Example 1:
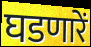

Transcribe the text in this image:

घडणारें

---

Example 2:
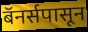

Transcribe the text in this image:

बॅनर्सपासून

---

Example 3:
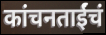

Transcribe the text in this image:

कांचनताईंचं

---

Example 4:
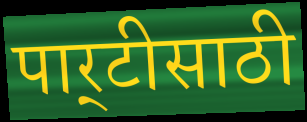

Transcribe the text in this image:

पार्टीसाठी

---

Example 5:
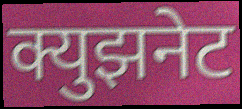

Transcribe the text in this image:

क्युझनेट